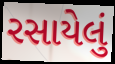
રસાયેલું